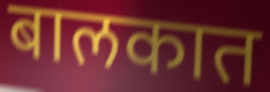
बालकात